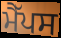
ਮੈੱਪਸ